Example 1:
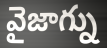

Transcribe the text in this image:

వైజాగ్ను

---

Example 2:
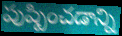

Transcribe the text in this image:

పుష్పించడాన్ని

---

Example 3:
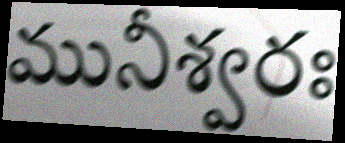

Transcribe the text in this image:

మునీశ్వరః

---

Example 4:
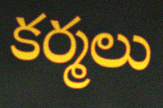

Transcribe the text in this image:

కర్మలు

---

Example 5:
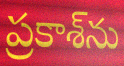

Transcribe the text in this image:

ప్రకాశ్‌ను